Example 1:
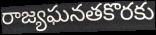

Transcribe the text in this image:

రాజ్యఘనతకొరకు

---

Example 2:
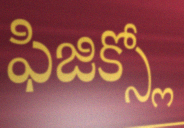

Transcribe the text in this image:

ఫిజిక్స్లో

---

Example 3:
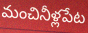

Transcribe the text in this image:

మంచినీళ్లపేట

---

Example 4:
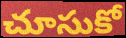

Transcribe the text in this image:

చూసుకో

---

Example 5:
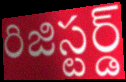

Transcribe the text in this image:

రిజిస్టర్డ్